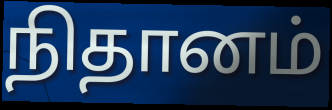
நிதானம்